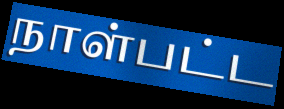
நாள்பட்ட